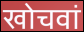
खोचवां